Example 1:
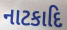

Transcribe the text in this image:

નાટકાદિ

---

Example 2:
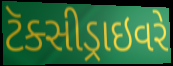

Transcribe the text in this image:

ટૅક્સીડ્રાઇવરે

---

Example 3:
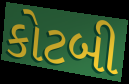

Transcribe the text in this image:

કોટબી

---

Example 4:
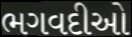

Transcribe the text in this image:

ભગવદીઓ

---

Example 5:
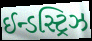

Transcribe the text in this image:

ઈન્ડસ્ટ્રિઝ